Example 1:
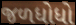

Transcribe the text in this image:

જળધોધો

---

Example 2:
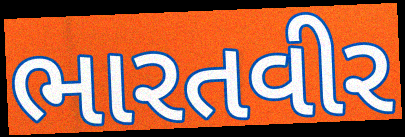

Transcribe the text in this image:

ભારતવીર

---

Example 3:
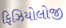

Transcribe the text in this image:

ફિઝિયોલોજી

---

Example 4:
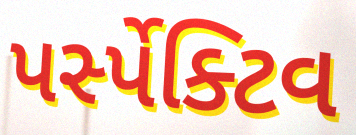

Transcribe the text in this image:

પર્સ્પેક્ટિવ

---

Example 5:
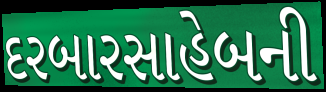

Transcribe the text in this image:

દરબારસાહેબની